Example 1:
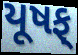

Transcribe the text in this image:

યૂષફ્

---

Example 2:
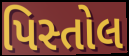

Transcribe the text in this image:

પિસ્તોલ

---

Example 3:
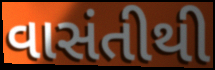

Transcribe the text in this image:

વાસંતીથી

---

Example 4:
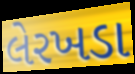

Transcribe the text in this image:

લેરખડા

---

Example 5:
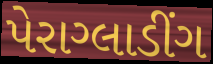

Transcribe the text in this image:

પેરાગ્લાડીંગ